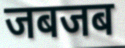
जबजब